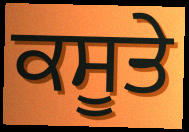
ਕਸੂਤੇ